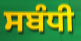
ਸਬੰਧੀ